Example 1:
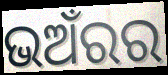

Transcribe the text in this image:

ଭଅଁରର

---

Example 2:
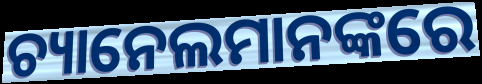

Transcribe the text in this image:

ଚ୍ୟାନେଲମାନଙ୍କରେ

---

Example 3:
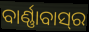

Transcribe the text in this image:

ବାର୍ଣ୍ଣାବାସ୍‌ର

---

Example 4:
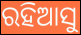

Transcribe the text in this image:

ରହିଆସୁ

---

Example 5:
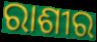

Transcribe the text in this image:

ରାଶୀର